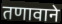
तणावाने